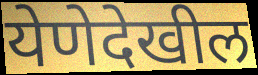
येणेदेखील